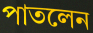
পাতলেন